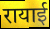
रायाई